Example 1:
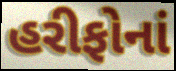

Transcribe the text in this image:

હરીફોનાં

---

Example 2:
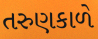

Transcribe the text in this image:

તરુણકાળે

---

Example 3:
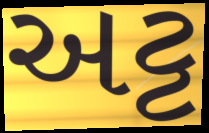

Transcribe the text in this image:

અટ્ટ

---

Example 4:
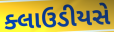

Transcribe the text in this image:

ક્લાઉડીયસે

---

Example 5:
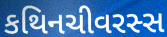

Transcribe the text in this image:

કથિનચીવરસ્સ